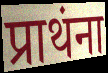
प्राथंना